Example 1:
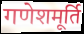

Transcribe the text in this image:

गणेशमूर्ति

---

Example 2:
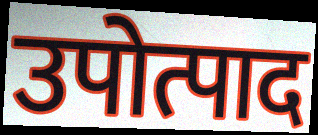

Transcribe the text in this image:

उपोत्पाद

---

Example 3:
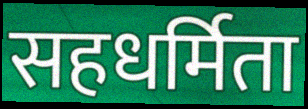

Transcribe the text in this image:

सहधर्मिता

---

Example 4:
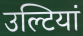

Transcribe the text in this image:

उल्टियां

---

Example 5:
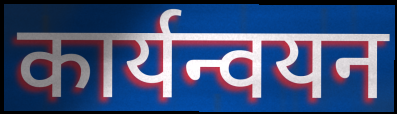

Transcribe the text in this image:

कार्यन्वयन